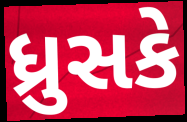
ધ્રુસકે